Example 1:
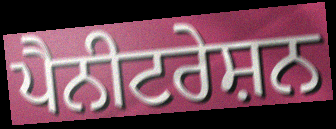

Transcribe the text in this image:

ਪੈਨੀਟਰੇਸ਼ਨ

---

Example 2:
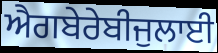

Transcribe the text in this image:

ਐਗਬੇਰੇਬੀਜੁਲਾਈ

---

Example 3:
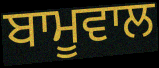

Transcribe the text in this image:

ਬਾਮੂਵਾਲ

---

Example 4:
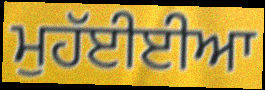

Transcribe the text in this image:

ਮੁਹੱਈਈਆ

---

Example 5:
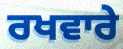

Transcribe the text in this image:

ਰਖਵਾਰੇ